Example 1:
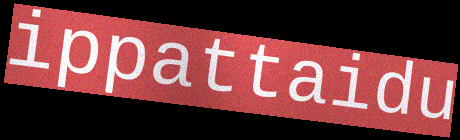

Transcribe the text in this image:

ippattaidu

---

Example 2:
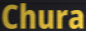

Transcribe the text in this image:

Chura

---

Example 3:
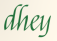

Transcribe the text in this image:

dhey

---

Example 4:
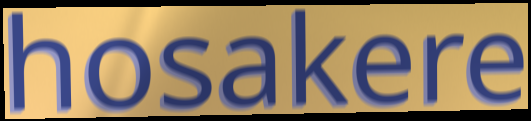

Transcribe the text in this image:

hosakere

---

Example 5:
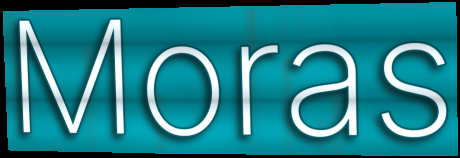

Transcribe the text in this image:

Moras